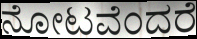
ನೋಟವೆಂದರೆ